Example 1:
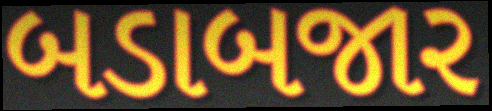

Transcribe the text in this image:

બડાબજાર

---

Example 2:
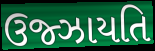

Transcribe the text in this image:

ઉજ્ઝાયતિ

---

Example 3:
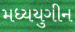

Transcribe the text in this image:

મધ્યયુગીન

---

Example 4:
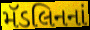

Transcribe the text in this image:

મૅડલિનનાં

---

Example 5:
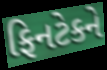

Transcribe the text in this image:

ફિનટેકને